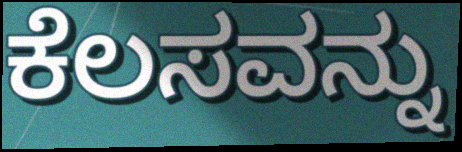
ಕೆಲಸವನ್ನು